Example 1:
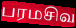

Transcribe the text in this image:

பரமசிவ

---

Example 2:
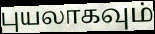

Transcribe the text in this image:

புயலாகவும்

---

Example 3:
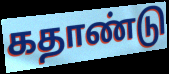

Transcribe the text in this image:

கதாண்டு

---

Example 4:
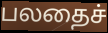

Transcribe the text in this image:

பலதைச்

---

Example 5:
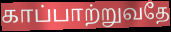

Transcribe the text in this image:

காப்பாற்றுவதே